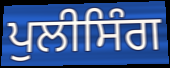
ਪੁਲੀਸਿੰਗ